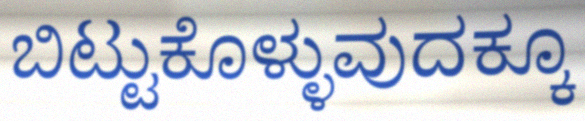
ಬಿಟ್ಟುಕೊಳ್ಳುವುದಕ್ಕೂ